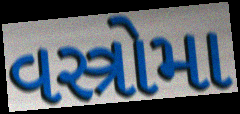
વસ્ત્રોમા